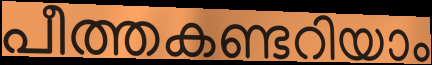
പീത്തകണ്ടറിയാം